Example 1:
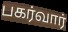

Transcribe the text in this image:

பகர்வார்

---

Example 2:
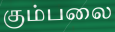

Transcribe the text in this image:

கும்பலை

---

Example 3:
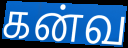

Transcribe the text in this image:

கன்வ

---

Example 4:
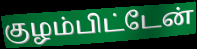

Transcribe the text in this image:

குழம்பிட்டேன்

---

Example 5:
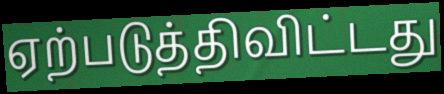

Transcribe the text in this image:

ஏற்படுத்திவிட்டது